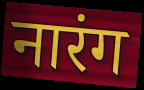
नारंग